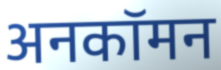
अनकॉमन